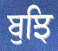
ਬੁਝਿ